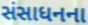
સંસાધનના